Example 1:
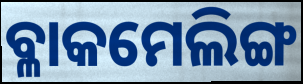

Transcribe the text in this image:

ବ୍ଳାକମେଲିଙ୍ଗ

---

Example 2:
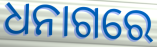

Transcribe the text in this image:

ଧନାଗରେ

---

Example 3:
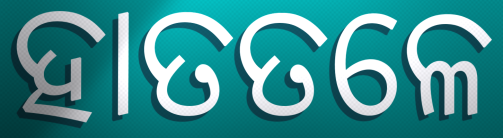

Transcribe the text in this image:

ହାତତଳେ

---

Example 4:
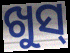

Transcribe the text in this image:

ଖୁସ୍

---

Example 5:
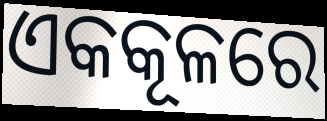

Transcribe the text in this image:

ଏକକୂଳରେ